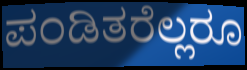
ಪಂಡಿತರೆಲ್ಲರೂ